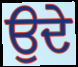
ਉਦੇ